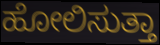
ಹೋಲಿಸುತ್ತಾ